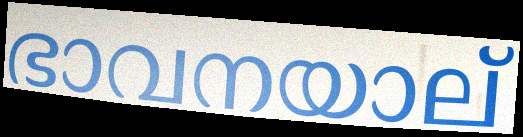
ഭാവനയാല്